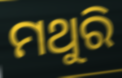
ମଥୁରି